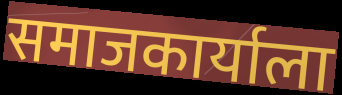
समाजकार्याला